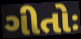
ગીતોઃ